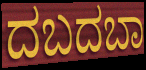
ದಬದಬಾ